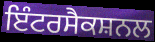
ਇੰਟਰਸੈਕਸ਼ਨਲ